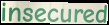
insecured